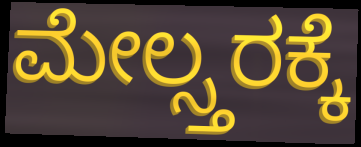
ಮೇಲ್ಸ್ತರಕ್ಕೆ